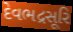
દેવભદ્રસૂરિ